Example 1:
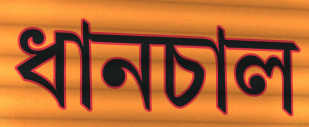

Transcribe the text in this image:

ধানচাল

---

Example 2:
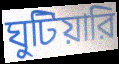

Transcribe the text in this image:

ঘুটিয়ারি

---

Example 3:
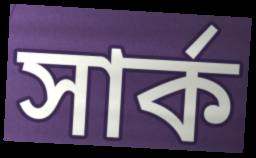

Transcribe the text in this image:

সার্ক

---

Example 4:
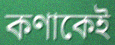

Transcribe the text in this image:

কণাকেই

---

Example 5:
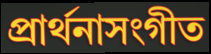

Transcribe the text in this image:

প্রার্থনাসংগীত